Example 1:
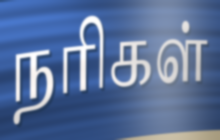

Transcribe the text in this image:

நரிகள்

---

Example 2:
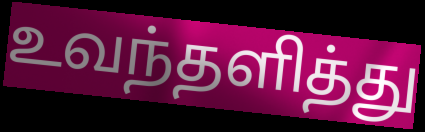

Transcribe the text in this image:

உவந்தளித்து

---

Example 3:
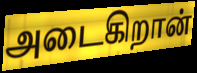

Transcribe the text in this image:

அடைகிறான்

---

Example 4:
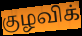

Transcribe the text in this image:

குழவிக்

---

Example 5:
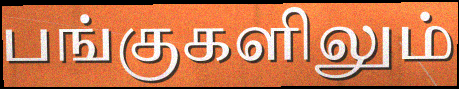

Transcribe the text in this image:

பங்குகளிலும்